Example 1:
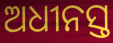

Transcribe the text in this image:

ଅଧୀନସ୍ତ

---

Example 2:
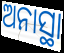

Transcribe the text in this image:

ଅନାସ୍ଥା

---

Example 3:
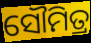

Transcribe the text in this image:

ସୌମିତ୍ର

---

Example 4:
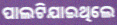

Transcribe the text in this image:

ପାଲଟିଯାଇଥିଲେ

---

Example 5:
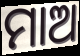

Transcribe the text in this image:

ମାଅ